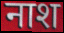
नाश